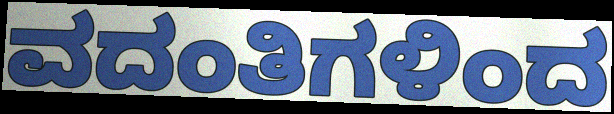
ವದಂತಿಗಳಿಂದ